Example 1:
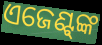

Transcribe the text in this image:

ଏଜେଣ୍ଟ୍‍ଙ୍କ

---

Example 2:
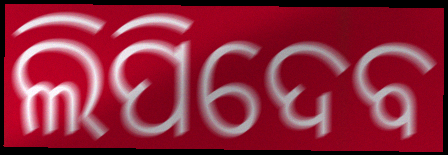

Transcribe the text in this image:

ଲିପିଦେବ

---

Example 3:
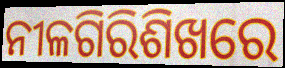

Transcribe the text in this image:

ନୀଳଗିରିଶିଖରେ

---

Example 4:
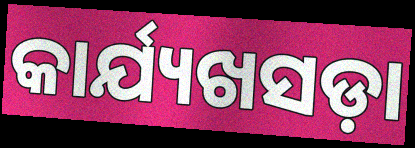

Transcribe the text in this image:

କାର୍ଯ୍ୟଖସଡ଼ା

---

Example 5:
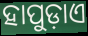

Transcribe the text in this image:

ହାପୁଡ଼ାଏ